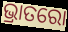
ଭ୍ରାତରୋ